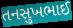
તનસુખભાઈ